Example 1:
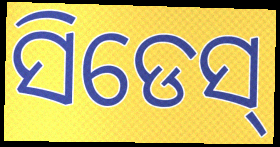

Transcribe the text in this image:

ସିଡେସ୍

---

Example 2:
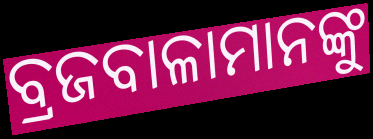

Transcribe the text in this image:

ବ୍ରଜବାଳାମାନଙ୍କୁ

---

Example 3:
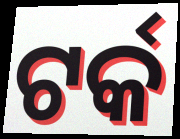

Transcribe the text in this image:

ଟର୍କ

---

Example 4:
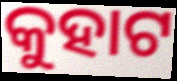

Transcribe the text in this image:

କୁହାଟ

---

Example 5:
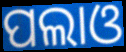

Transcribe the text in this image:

ପଲାଓ